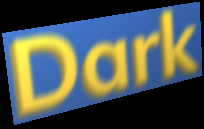
Dark